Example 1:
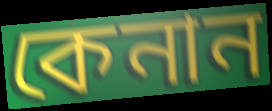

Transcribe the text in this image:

কেনান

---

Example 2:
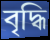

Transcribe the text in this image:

বৃদ্ধি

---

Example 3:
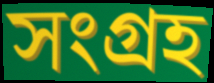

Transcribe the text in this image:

সংগ্রহ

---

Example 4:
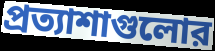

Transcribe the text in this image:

প্রত্যাশাগুলোর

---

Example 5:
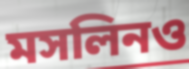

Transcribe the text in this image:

মসলিনও